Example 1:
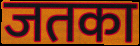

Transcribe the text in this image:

जतका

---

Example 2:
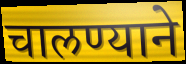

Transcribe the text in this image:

चालण्याने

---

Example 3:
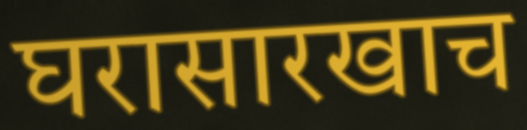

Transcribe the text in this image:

घरासारखाच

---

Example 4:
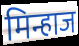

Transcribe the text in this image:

मिन्हाज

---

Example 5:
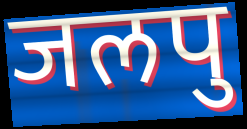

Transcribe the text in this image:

जलपु